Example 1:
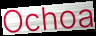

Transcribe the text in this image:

Ochoa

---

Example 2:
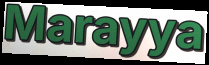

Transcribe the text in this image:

Marayya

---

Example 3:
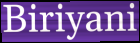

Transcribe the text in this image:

Biriyani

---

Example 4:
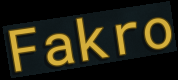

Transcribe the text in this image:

Fakro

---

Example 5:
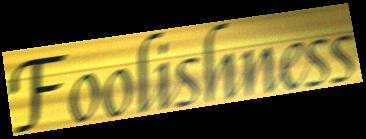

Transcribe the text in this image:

Foolishness